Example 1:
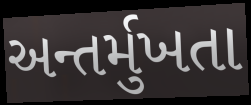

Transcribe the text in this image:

અન્તર્મુખતા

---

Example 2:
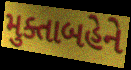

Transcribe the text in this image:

મુક્તાબહેને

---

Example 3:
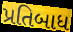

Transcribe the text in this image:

પ્રતિબાધ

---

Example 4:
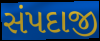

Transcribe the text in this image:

સંપદાજી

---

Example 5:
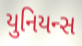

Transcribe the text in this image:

યુનિયન્સ